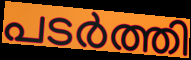
പടർത്തി